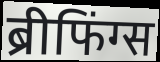
ब्रीफिंग्स